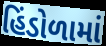
હિંડોળામાં